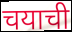
चयाची